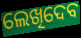
ଲେଖିଦେବ